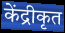
केंद्रीकृत